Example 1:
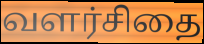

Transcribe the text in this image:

வளர்சிதை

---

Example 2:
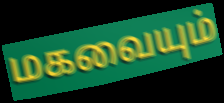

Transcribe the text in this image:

மகவையும்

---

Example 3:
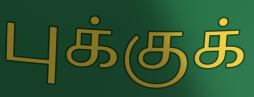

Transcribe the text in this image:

புக்குக்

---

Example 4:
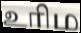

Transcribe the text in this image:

உரிம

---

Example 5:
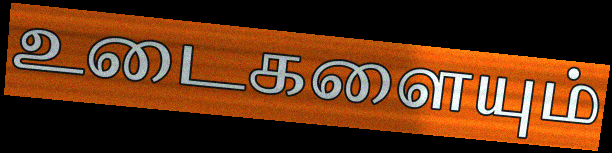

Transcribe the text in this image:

உடைகளையும்